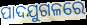
ପାଦଯୁଗଳରେ